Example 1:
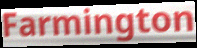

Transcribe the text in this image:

Farmington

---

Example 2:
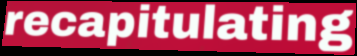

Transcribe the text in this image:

recapitulating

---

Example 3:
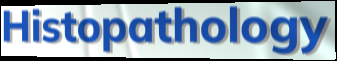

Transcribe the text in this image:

Histopathology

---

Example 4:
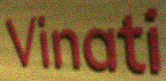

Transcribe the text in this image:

Vinati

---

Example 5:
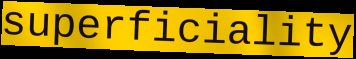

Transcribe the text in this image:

superficiality